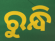
ରୁନ୍ଧି